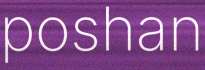
poshan